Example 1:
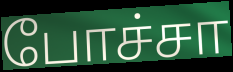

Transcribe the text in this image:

போச்சா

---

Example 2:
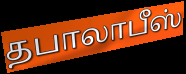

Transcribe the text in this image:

தபாலாபீஸ்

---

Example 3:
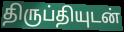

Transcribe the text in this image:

திருப்தியுடன்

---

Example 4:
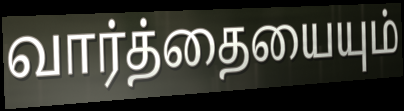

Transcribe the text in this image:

வார்த்தையையும்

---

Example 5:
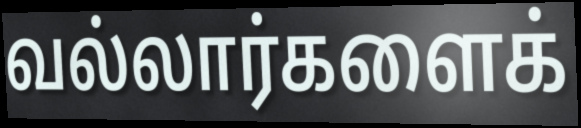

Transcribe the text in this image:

வல்லார்களைக்